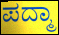
ಪದ್ಮಾ